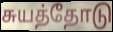
சுயத்தோடு